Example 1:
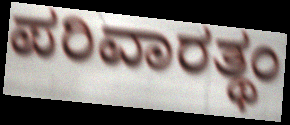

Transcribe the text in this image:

ಪರಿವಾರತ್ಥಂ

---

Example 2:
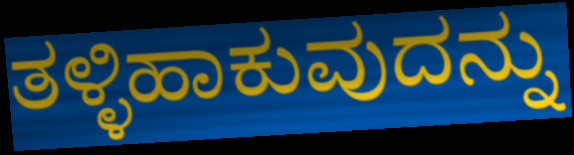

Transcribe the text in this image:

ತಳ್ಳಿಹಾಕುವುದನ್ನು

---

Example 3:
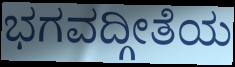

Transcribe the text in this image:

ಭಗವದ್ಗೀತೆಯ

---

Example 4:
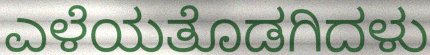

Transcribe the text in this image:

ಎಳೆಯತೊಡಗಿದಳು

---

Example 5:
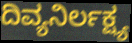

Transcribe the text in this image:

ದಿವ್ಯನಿರ್ಲಕ್ಷ್ಯ